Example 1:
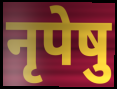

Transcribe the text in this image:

नृपेषु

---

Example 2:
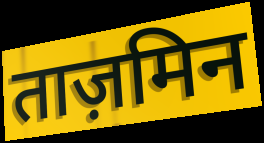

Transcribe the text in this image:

ताज़मिन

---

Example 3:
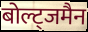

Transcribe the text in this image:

बोल्ट्जमैन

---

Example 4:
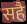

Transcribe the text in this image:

सहै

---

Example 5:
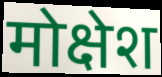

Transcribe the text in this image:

मोक्षेश